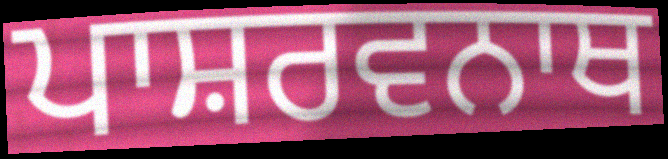
ਪਾਸ਼ਰਵਨਾਥ